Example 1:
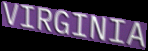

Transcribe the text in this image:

VIRGINIA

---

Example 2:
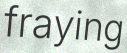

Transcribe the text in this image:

fraying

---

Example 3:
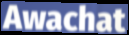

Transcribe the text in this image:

Awachat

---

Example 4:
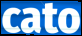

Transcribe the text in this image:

cato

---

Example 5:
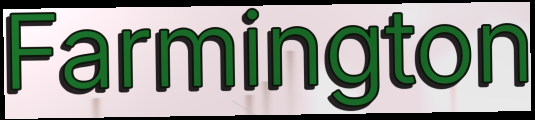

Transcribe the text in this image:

Farmington